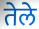
तेले